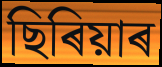
ছিৰিয়াৰ